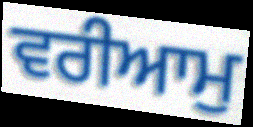
ਵਰੀਆਮੁ